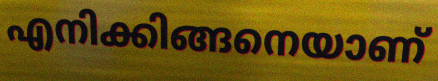
എനിക്കിങ്ങനെയാണ്